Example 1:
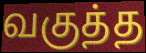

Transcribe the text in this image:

வகுத்த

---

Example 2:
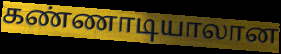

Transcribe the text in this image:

கண்ணாடியாலான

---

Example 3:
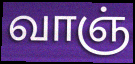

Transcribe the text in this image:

வாஞ்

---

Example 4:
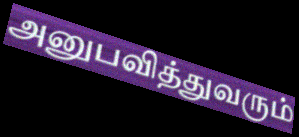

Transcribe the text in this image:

அனுபவித்துவரும்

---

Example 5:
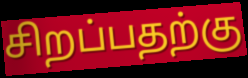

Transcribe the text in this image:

சிறப்பதற்கு